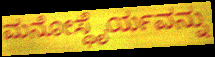
ಮನೋಸ್ಥೈರ್ಯವನ್ನು